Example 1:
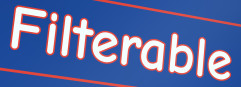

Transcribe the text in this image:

Filterable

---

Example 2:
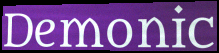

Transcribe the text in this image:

Demonic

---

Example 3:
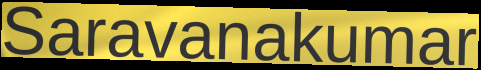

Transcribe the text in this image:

Saravanakumar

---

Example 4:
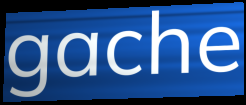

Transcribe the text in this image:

gache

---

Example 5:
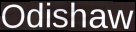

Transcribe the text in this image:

Odishaw